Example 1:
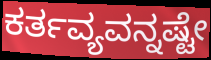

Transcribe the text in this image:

ಕರ್ತವ್ಯವನ್ನಷ್ಟೇ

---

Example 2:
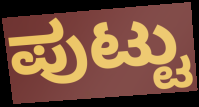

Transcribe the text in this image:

ಪುಟ್ಟು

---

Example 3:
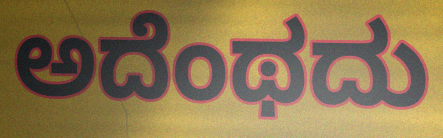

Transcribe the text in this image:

ಅದೆಂಥದು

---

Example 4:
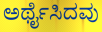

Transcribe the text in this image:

ಅರ್ಥೈಸಿದವು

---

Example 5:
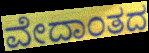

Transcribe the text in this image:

ವೇದಾಂತದ